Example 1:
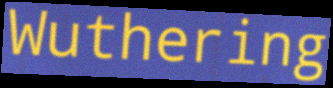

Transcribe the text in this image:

Wuthering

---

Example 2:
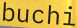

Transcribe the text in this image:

buchi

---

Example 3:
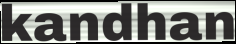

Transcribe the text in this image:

kandhan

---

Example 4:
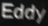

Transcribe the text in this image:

Eddy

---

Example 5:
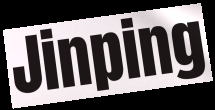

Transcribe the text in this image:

Jinping